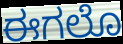
ಈಗಲೊ